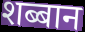
शब्बान